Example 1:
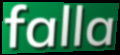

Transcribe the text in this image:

falla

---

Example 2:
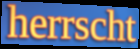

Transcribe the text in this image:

herrscht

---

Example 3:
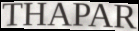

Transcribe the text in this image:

THAPAR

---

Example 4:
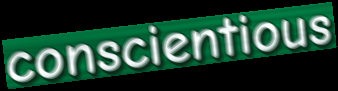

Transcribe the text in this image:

conscientious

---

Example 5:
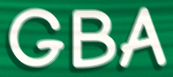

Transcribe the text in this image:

GBA